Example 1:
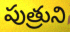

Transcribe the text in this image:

పుత్రుని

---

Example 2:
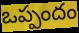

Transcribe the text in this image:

ఒప్పందం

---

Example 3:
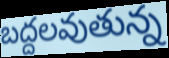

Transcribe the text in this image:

బద్దలవుతున్న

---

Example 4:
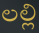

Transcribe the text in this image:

లల్లి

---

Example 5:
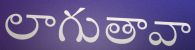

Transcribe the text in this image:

లాగుతావా